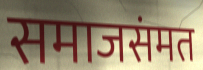
समाजसंमत